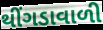
થીંગડાવાળી